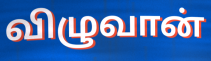
விழுவான்